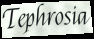
Tephrosia